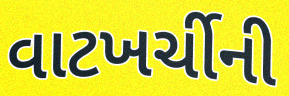
વાટખર્ચીની